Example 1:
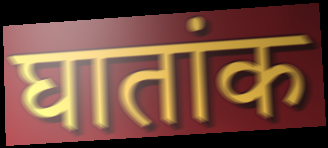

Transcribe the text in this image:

घातांक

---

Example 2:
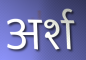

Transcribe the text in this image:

अर्श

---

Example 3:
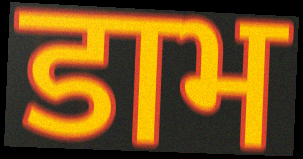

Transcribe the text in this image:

डाभ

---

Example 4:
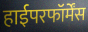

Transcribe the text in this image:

हाईपरफॉर्मेंस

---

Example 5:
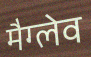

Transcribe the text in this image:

मैग्लेव